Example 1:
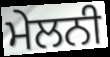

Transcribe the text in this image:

ਮੇਲਨੀ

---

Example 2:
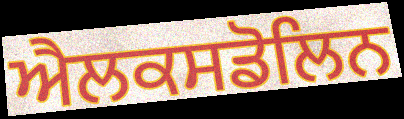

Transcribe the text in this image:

ਐਲਕਸਡੋਲਿਨ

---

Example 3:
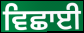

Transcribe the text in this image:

ਵਿਛਾਈ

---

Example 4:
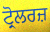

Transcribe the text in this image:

ਟ੍ਰੋਲਰਜ਼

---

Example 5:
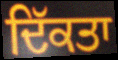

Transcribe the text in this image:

ਦਿੱਕਤਾ